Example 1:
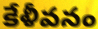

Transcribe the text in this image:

కేళీవనం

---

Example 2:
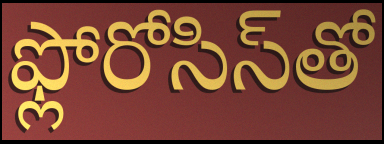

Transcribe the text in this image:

ఫ్లోరోసిస్‌తో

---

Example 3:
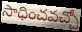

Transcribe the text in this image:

సాధించవచ్చో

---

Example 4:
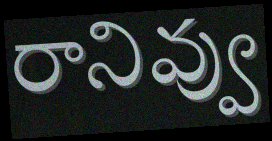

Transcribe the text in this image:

రానివ్వు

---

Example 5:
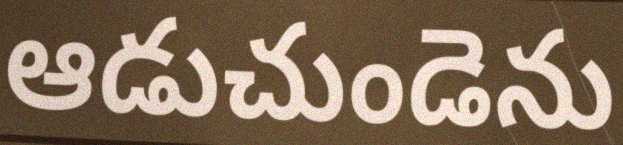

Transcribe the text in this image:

ఆడుచుండెను